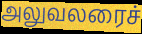
அலுவலரைச்